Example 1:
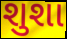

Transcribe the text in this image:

શુશા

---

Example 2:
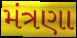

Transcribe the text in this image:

મંત્રણા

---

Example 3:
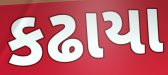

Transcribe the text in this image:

કઢાયા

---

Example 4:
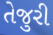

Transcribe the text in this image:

તેજુરી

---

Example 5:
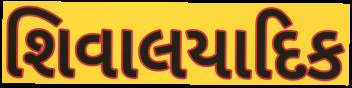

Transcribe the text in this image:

શિવાલયાદિક